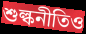
শুল্কনীতিও